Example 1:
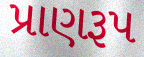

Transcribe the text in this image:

પ્રાણરૂપ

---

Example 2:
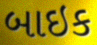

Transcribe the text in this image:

બાઇક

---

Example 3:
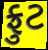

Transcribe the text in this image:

ફ્રુટ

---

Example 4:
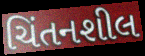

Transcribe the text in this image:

ચિંતનશીલ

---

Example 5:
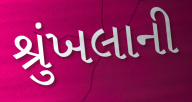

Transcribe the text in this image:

શ્રુંખલાની